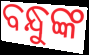
ବନ୍ଧୁଙ୍କ